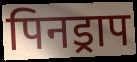
पिनड्राप